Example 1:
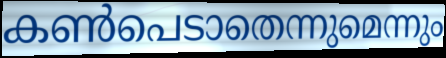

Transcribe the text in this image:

കൺപെടാതെന്നുമെന്നും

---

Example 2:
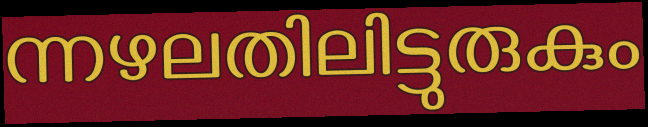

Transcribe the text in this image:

ന്നഴലതിലിട്ടുരുകും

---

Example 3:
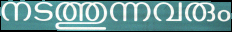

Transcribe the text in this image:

നടത്തുന്നവരും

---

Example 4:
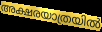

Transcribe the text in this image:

അക്ഷരയാത്രയിൽ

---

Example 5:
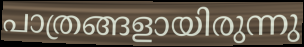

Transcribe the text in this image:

പാത്രങ്ങളായിരുന്നു